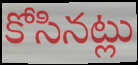
కోసినట్లు